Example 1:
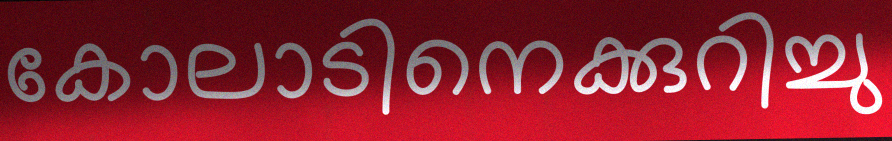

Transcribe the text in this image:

കോലാടിനെക്കുറിച്ചു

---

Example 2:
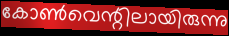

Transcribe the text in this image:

കോൺവെന്റിലായിരുന്നു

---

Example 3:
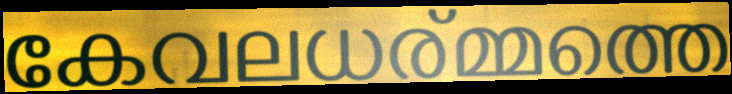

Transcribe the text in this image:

കേവലധര്മ്മത്തെ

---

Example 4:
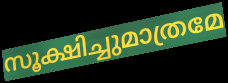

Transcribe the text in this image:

സൂക്ഷിച്ചുമാത്രമേ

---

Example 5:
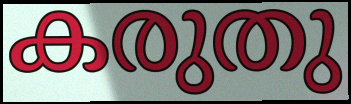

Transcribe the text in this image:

കരുതു